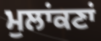
ਮੁਲਾਂਕਣਾਂ